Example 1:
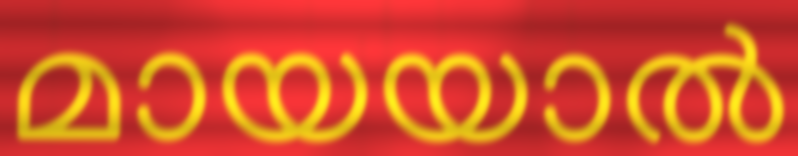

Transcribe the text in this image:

മായയാൽ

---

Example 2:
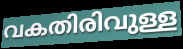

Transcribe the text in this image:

വകതിരിവുള്ള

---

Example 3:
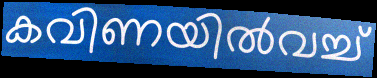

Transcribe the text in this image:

കവിണയിൽവച്ച്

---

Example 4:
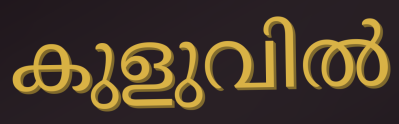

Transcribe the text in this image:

കുളുവിൽ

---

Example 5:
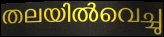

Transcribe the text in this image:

തലയിൽവെച്ചു